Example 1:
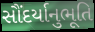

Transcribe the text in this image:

સૌંદર્યાનુભૂતિ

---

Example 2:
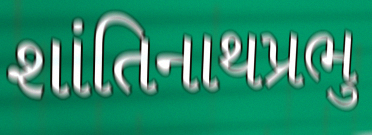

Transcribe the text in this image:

શાંતિનાથપ્રભુ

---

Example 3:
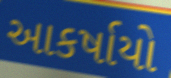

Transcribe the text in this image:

આકર્ષાયો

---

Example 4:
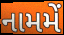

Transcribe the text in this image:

નામમેં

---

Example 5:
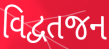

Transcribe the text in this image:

વિદ્વતજન